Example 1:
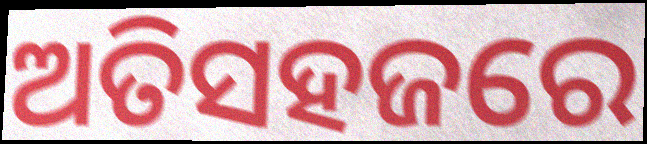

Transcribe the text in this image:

ଅତିସହଜରେ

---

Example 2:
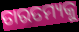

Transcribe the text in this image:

ତାରତମ୍ୟକୁ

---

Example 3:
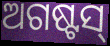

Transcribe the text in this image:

ଅଗଷ୍ଟସ୍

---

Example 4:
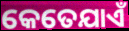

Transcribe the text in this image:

କେତେଯାଏଁ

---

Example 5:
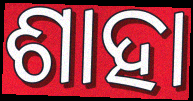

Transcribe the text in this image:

ଶାହା